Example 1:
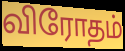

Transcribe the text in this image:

விரோதம்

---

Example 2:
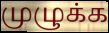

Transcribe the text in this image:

முழுக்க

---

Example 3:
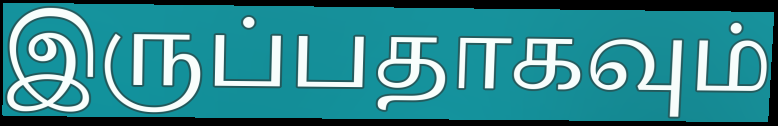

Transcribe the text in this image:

இருப்பதாகவும்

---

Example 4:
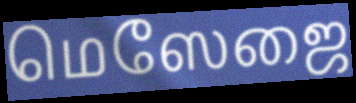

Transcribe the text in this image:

மெஸேஜை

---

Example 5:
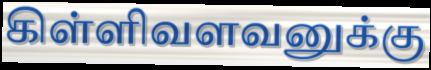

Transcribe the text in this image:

கிள்ளிவளவனுக்கு